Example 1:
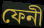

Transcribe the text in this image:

ফেনী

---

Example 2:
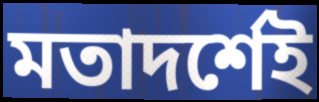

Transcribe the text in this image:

মতাদর্শেই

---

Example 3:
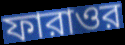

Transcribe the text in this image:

ফারাওর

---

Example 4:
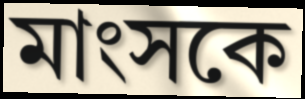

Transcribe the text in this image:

মাংসকে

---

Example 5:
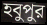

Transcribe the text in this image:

হবুপুর